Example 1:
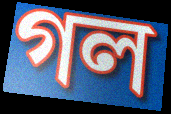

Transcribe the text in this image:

গল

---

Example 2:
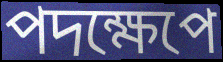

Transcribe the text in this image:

পদক্ষেপে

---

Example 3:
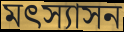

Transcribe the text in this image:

মৎস্যাসন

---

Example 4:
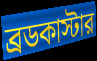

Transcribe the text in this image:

ব্রডকাস্টার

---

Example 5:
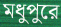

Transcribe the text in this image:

মধুপুরে